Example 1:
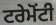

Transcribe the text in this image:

ਟਰੇਮੋਂਟੀ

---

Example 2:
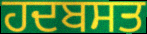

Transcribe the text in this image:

ਹਦਬਸਤ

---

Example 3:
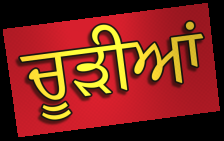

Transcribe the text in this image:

ਚੂੜੀਆਂ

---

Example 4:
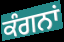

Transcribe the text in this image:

ਕੰਗਨਾਂ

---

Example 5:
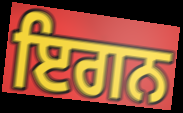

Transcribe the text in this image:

ਇਗਨ